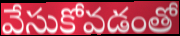
వేసుకోవడంతో